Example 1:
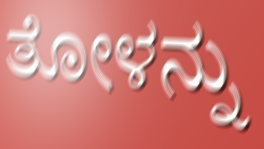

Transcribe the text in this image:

ತೋಳನ್ನು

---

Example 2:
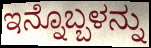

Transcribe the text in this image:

ಇನ್ನೊಬ್ಬಳನ್ನು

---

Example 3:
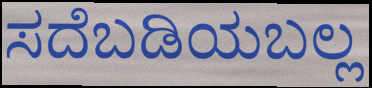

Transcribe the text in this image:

ಸದೆಬಡಿಯಬಲ್ಲ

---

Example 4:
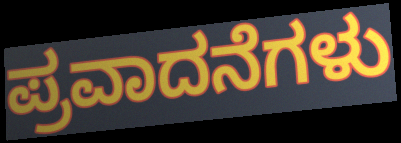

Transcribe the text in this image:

ಪ್ರವಾದನೆಗಳು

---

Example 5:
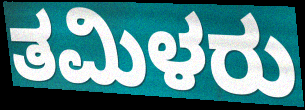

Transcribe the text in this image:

ತಮಿಳರು